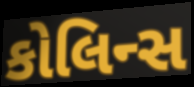
કોલિન્સ